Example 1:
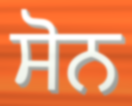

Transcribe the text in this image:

ਸੋਨ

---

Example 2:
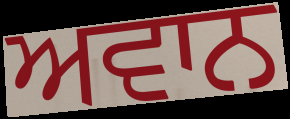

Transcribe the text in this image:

ਅਵਾਨ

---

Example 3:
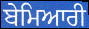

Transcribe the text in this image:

ਬੇਮਿਆਰੀ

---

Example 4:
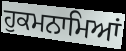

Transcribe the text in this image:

ਹੁਕਮਨਾਮਿਆਂ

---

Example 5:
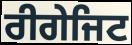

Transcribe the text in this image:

ਰੀਗੇਜਿਟ